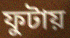
ফুটায়